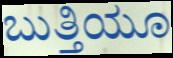
ಬುತ್ತಿಯೂ